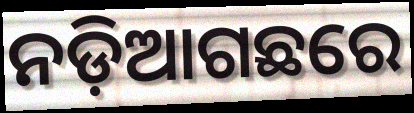
ନଡ଼ିଆଗଛରେ